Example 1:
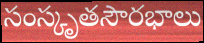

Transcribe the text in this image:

సంస్కృతసౌరభాలు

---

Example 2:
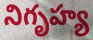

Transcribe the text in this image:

నిగృహ్య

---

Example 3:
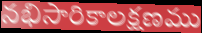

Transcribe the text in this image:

నభిసారికాలక్షణము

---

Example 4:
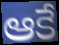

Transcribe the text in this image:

ఆకే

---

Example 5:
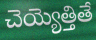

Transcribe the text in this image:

చెయ్యెత్తితే